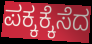
ಪಕ್ಕಕ್ಕೆಸೆದ